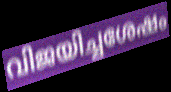
വിജയിച്ചശേഷം